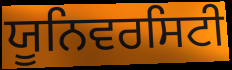
ਯੂਨਿਵਰਸਿਟੀ